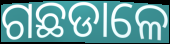
ଗଛଡାଳେ